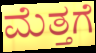
ಮೆತ್ತಗೆ